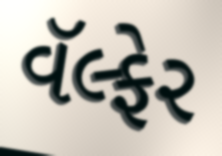
વૅલ્ફેર